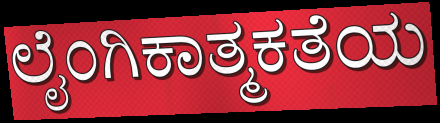
ಲೈಂಗಿಕಾತ್ಮಕತೆಯ